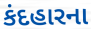
કંદહારના